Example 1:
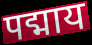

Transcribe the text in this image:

पद्माय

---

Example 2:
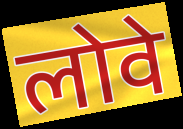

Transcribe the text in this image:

लोवे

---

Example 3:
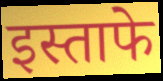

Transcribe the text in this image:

इस्ताफे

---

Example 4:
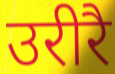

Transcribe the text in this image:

उरीरै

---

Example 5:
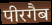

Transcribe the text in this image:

पीरगैब